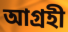
আগ্রহী